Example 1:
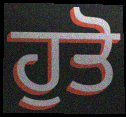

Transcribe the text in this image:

ਹੁਤੋ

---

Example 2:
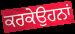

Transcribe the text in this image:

ਕਰਕੇਉਹਨਾਂ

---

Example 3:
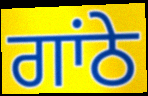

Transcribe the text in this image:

ਗਾਂਠੇ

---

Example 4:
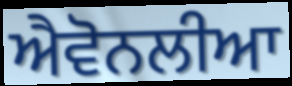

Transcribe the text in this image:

ਐਵੋਨਲੀਆ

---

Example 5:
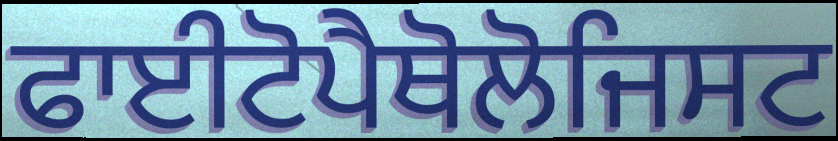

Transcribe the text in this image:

ਫਾਈਟੋਪੈਥੋਲੋਜਿਸਟ